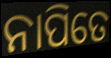
ନାପିତେ